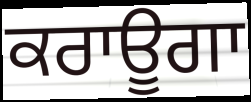
ਕਰਾਊਗਾ